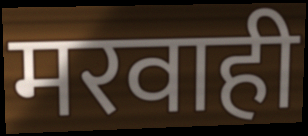
मरवाही